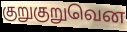
குறுகுறுவென